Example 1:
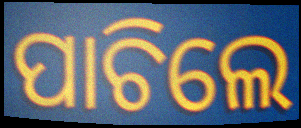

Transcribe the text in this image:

ପାଚିଲେ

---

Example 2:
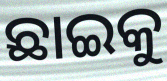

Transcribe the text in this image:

ଛାଇକୁ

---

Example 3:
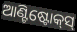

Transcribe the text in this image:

ଆଣ୍ଟିଷ୍ଟୋକ୍‍ସ୍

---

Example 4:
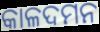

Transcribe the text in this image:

କାଳଦମନ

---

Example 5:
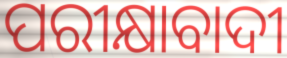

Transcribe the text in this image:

ପରୀକ୍ଷାବାଦୀ